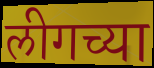
लीगच्या